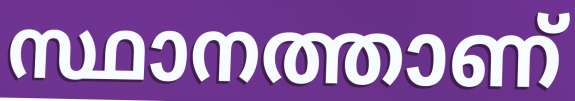
സ്ഥാനത്താണ്